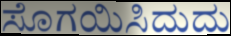
ಸೊಗಯಿಸಿದುದು